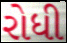
રોધી